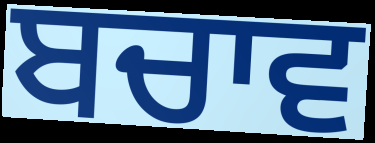
ਬਚਾਵ